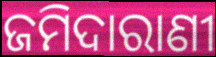
ଜମିଦାରାଣୀ